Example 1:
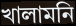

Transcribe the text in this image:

খালামনি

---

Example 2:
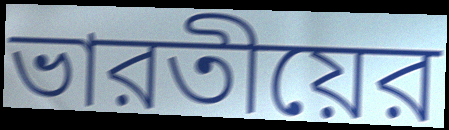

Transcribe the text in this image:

ভারতীয়ের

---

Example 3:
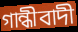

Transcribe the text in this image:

গান্ধীবাদী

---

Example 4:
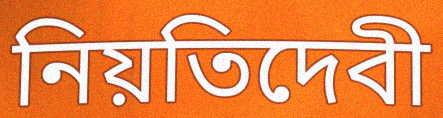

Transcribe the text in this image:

নিয়তিদেবী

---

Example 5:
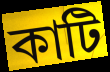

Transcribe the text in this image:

কাটি